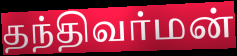
தந்திவர்மன்